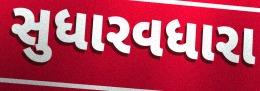
સુધારવધારા